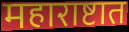
महाराष्टात